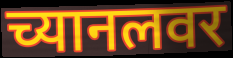
च्यानलवर